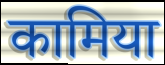
कामिया